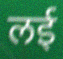
लई